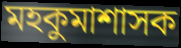
মহকুমাশাসক